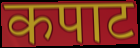
कपाट